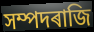
সম্পদৰাজি